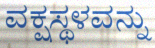
ವಕ್ಷಸ್ಥಳವನ್ನು